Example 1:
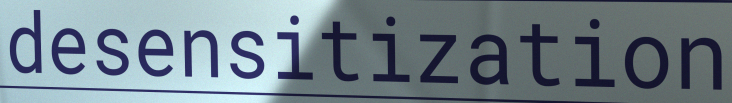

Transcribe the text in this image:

desensitization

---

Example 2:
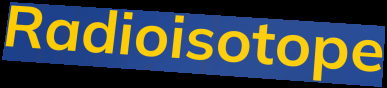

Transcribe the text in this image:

Radioisotope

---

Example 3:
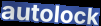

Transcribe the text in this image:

autolock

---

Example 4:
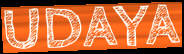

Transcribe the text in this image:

UDAYA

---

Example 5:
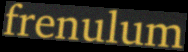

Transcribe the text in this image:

frenulum